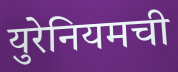
युरेनियमची